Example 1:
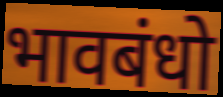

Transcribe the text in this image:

भावबंधो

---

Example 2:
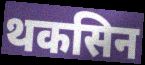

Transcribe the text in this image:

थकसिन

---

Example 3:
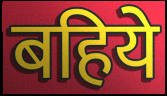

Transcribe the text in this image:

बहिये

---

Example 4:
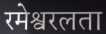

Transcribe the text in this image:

रमेश्वरलता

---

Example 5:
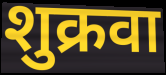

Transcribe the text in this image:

शुक्रवा